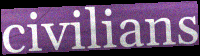
civilians